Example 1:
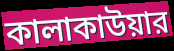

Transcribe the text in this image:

কালাকাউয়ার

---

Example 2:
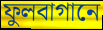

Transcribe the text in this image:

ফুলবাগানে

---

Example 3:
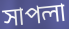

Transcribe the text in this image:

সাপলা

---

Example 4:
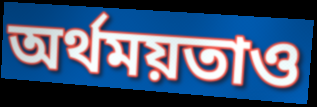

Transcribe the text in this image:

অর্থময়তাও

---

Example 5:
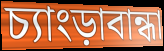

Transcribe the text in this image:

চ্যাংড়াবান্ধা